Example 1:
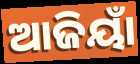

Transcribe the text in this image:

ଆଜିୟାଁ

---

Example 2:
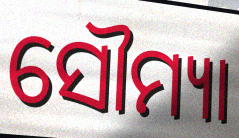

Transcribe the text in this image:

ସୌମ୍ୟା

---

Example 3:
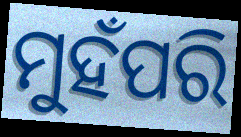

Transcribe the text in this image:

ମୁହଁପରି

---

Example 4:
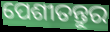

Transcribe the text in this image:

ପେଶୀତନ୍ତୁର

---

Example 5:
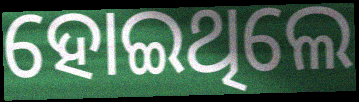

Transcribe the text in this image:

ହୋଇଥିଲେ